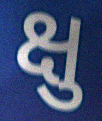
ક્ષુ